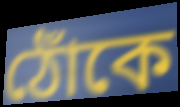
ঠোঁকে